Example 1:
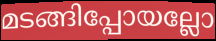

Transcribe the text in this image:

മടങ്ങിപ്പോയല്ലോ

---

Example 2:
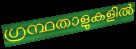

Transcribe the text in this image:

ഗ്രന്ഥതാളുകളിൽ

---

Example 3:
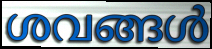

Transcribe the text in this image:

ശവങ്ങൾ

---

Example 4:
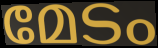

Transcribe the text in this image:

മേടം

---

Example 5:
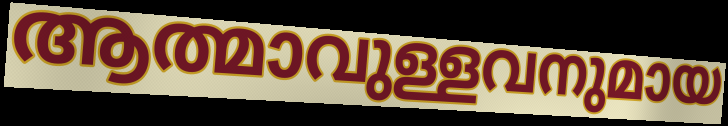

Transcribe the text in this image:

ആത്മാവുള്ളവനുമായ